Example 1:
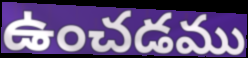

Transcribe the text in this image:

ఉంచడము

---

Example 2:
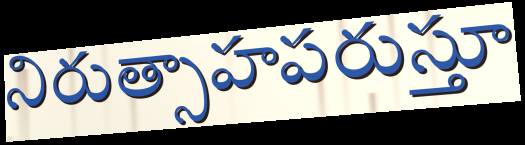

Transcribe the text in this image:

నిరుత్సాహపరుస్తూ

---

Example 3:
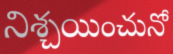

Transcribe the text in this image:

నిశ్చయించునో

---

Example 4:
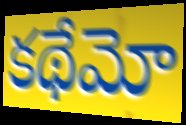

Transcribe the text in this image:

కథేమో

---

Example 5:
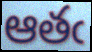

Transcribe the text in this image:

ఆతఁ